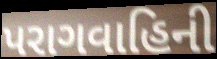
પરાગવાહિની